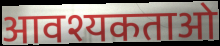
आवश्यकताओ